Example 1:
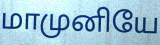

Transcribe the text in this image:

மாமுனியே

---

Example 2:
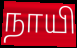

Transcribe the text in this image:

நாயி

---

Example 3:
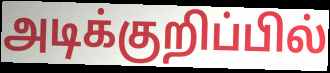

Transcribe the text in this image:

அடிக்குறிப்பில்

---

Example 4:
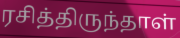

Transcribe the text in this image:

ரசித்திருந்தாள்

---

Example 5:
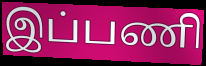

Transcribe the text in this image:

இப்பணி